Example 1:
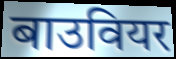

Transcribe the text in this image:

बाउवियर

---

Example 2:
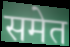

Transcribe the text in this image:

समेत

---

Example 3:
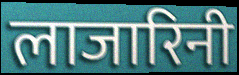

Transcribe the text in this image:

लाजारिनी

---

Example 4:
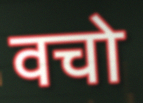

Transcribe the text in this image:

वचो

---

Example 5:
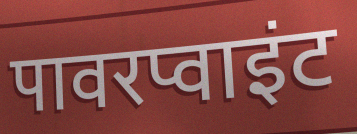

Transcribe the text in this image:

पावरप्वाइंट